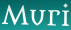
Muri